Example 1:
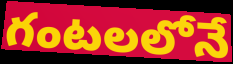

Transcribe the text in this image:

గంటలలోనే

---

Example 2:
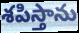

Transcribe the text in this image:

శపిస్తాను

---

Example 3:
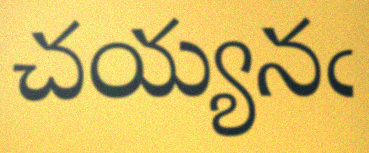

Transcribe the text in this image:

చయ్యనఁ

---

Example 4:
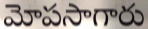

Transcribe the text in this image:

మోపసాగారు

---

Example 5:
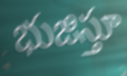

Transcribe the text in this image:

భుజిస్తూ